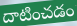
దాటించడం